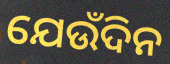
ଯେଉଁଦିନ